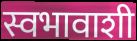
स्वभावाशी